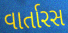
વાર્તારસ